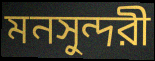
মনসুন্দরী